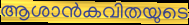
ആശാൻകവിതയുടെ